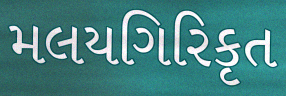
મલયગિરિકૃત